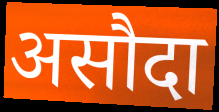
असौदा